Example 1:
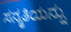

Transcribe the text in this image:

ಸನ್ಮತಿಯನ್ನು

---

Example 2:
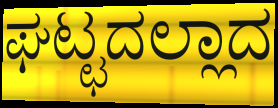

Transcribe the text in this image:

ಘಟ್ಟದಲ್ಲಾದ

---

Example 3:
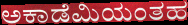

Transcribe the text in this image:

ಅಕಾಡೆಮಿಯಂತಹ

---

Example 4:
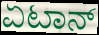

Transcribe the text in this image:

ಏಟಾನ್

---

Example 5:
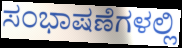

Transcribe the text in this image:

ಸಂಭಾಷಣೆಗಳಲ್ಲಿ